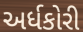
અર્ધકોરી